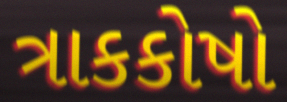
ત્રાકકોષો